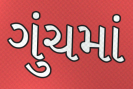
ગુંચમાં